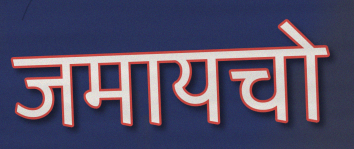
जमायचो